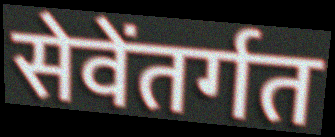
सेवेंतर्गत